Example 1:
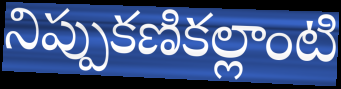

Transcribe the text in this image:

నిప్పుకణికల్లాంటి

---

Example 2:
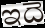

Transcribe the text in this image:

ఇదె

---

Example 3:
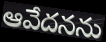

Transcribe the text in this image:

ఆవేదనను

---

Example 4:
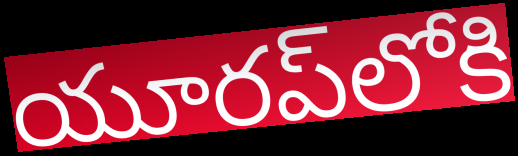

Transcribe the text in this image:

యూరప్‌లోకి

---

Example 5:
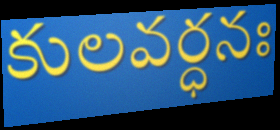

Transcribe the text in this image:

కులవర్ధనః